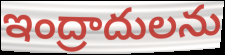
ఇంద్రాదులను